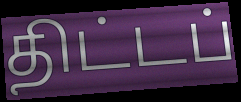
திட்டப்